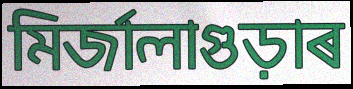
মিৰ্জালাগুড়াৰ